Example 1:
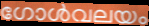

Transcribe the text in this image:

ഗോൾവലയം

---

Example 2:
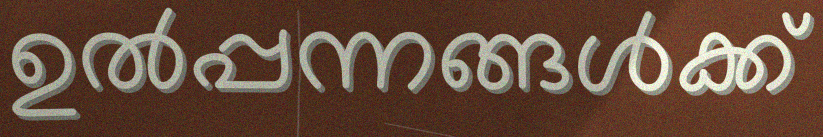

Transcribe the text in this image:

ഉൽപ്പന്നങ്ങൾക്ക്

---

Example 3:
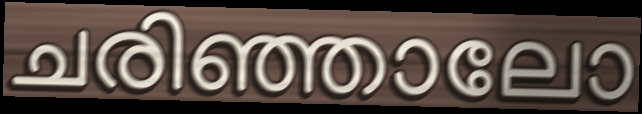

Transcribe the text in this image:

ചരിഞ്ഞാലോ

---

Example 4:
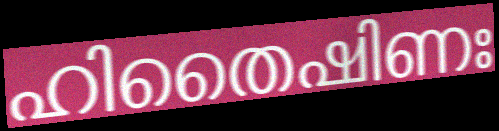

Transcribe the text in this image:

ഹിതൈഷിണഃ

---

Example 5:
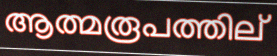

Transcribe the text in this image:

ആത്മരൂപത്തില്